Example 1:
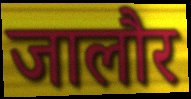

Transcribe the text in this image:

जालौर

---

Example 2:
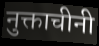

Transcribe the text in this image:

नुक्ताचीनी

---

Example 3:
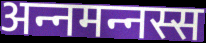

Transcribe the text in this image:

अन्नमन्नस्स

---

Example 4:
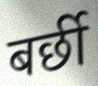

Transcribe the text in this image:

बर्छी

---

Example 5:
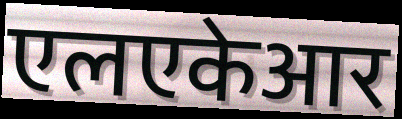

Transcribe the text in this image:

एलएकेआर